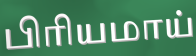
பிரியமாய்